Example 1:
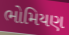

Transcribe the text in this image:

ભોમિયણ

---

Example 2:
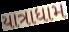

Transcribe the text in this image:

યાત્રાધામ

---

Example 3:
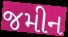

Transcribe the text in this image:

જમીન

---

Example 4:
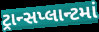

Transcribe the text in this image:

ટ્રાન્સપ્લાન્ટમાં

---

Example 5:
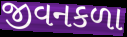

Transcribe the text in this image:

જીવનકળા